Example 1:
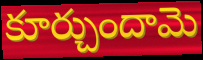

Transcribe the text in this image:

కూర్చుందామె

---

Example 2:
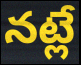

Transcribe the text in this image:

నట్లే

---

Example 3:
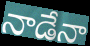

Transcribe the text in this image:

నాడేనా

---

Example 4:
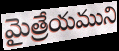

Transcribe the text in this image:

మైత్రేయముని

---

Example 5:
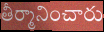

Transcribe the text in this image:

తీర్మానించారు